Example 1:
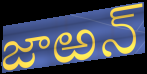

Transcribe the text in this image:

జాఱన్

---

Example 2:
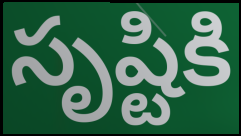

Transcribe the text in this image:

సృష్టికి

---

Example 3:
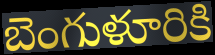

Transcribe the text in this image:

బెంగుళూరికి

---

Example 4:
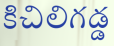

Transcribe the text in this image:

కిచిలిగడ్డ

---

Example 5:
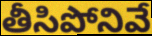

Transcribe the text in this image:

తీసిపోనివే